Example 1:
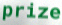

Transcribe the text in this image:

prize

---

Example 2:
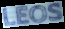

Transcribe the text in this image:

LEOS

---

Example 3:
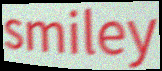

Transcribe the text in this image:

smiley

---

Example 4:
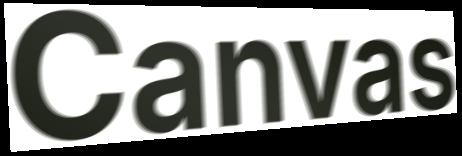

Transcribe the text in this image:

Canvas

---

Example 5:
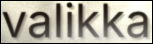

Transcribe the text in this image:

valikka